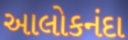
આલોકનંદા